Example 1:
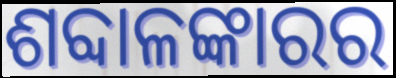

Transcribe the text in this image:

ଶବ୍ଦାଳଙ୍କାରର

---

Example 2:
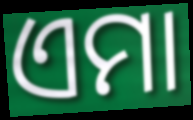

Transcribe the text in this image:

ଏମା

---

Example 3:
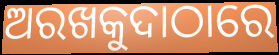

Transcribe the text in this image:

ଅରଖକୁଦାଠାରେ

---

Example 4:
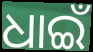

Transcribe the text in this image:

ଧାଇଁ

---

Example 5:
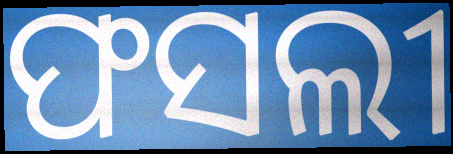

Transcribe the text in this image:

ଫସଲୀ